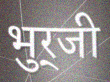
भुर्जी